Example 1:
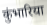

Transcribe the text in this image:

कुंभारिया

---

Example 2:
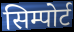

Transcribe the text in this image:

सिम्पोर्ट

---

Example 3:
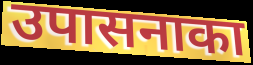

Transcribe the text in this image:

उपासनाका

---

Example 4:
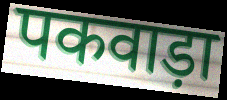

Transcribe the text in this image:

पकवाड़ा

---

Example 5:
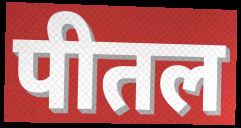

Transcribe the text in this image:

पीतल